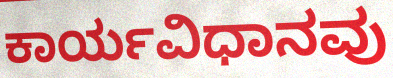
ಕಾರ್ಯವಿಧಾನವು